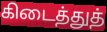
கிடைத்துத்